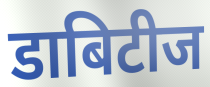
डाबिटीज